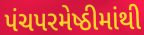
પંચપરમેષ્ઠીમાંથી